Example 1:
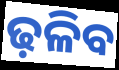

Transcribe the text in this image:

ଢ଼ଳିବ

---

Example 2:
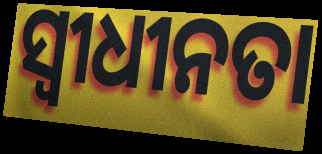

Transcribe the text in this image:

ସ୍ୱୀଧୀନତା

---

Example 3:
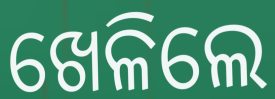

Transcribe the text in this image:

ଖେଳିଲେ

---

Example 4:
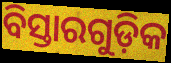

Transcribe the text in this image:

ବିସ୍ତାରଗୁଡ଼ିକ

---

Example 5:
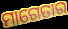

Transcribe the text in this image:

ମାଗେତାର